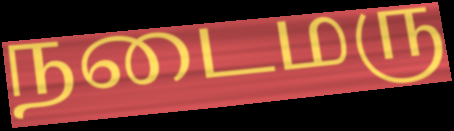
நடைமரு